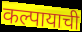
कल्पायाची